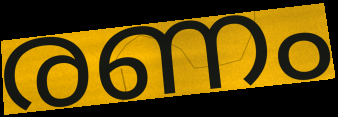
രണം